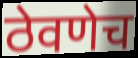
ठेवणेच